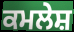
ਕਮਲੇਸ਼